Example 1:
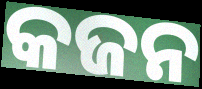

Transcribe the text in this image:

କଜନ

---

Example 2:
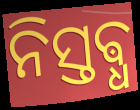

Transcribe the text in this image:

ନିସ୍ତଵ୍ଧ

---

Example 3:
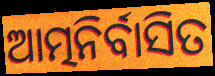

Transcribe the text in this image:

ଆତ୍ମନିର୍ବାସିତ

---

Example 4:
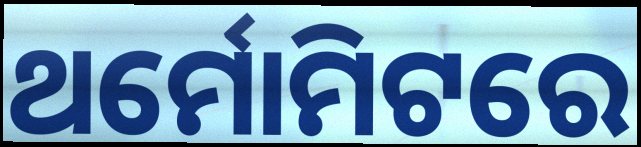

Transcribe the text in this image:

ଥର୍ମୋମିଟରେ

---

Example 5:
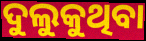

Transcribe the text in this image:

ଦୁଲୁକୁଥିବା